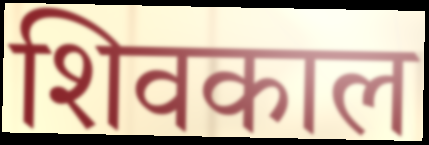
शिवकाल